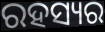
ରହସ୍ୟର